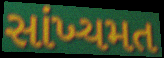
સાંખ્યમત